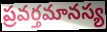
ప్రవర్తమానస్య